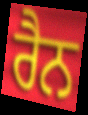
ਰੈਨ